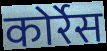
कोर्रेस